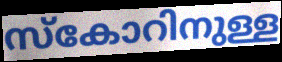
സ്കോറിനുള്ള